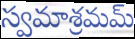
స్వమాశ్రమమ్